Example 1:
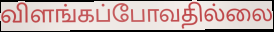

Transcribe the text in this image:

விளங்கப்போவதில்லை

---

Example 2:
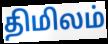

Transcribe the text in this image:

திமிலம்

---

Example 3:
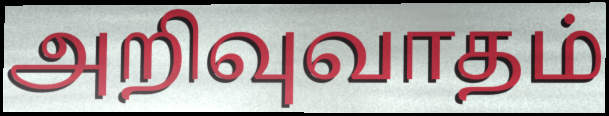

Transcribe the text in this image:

அறிவுவாதம்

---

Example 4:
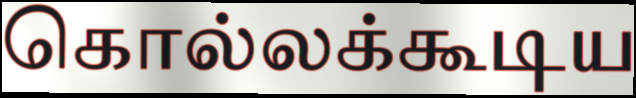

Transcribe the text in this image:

கொல்லக்கூடிய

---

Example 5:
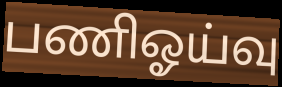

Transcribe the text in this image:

பணிஓய்வு